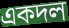
একদল